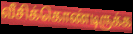
வீசிக்கொண்டிருக்க